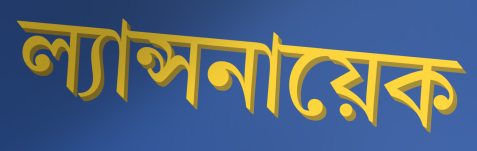
ল্যান্সনায়েক